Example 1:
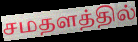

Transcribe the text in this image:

சமதளத்தில்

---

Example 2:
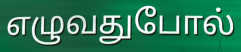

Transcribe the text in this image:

எழுவதுபோல்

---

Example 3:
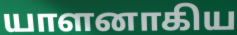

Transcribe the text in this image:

யாளனாகிய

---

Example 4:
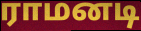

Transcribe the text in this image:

ராமனடி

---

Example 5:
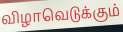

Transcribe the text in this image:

விழாவெடுக்கும்